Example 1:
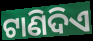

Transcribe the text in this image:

ଟାଣିଦିଏ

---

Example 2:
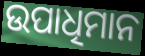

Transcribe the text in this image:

ଉପାଧିମାନ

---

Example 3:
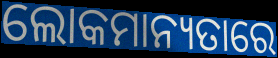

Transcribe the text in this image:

ଲୋକମାନ୍ୟତାରେ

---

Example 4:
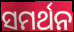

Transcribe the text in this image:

ସମର୍ଥନ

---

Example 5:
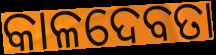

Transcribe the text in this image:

କାଳଦେବତା